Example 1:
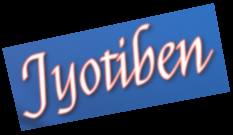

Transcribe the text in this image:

Jyotiben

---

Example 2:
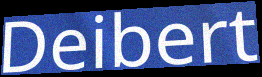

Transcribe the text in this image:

Deibert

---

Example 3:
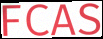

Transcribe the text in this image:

FCAS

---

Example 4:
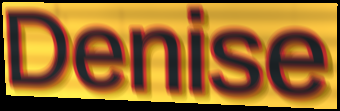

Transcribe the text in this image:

Denise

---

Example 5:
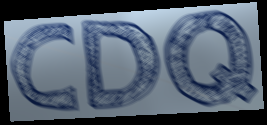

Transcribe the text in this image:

CDQ